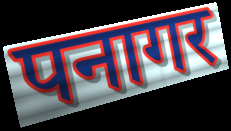
पनागर